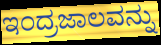
ಇಂದ್ರಜಾಲವನ್ನು